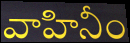
వాహినీం